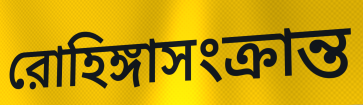
রোহিঙ্গাসংক্রান্ত